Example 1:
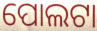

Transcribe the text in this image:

ପୋଲଟା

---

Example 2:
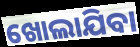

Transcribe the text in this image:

ଖୋଲାଯିବା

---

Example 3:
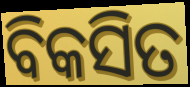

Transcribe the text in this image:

ବିକସିତ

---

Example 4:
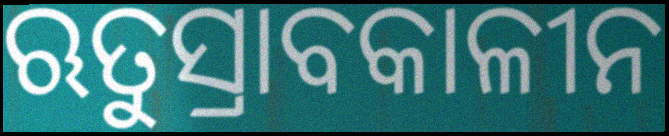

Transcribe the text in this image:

ଋତୁସ୍ରାବକାଳୀନ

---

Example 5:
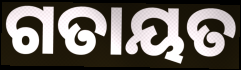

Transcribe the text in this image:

ଗତାୟତ